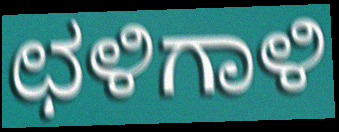
ಛಳಿಗಾಳಿ